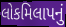
લોકમિલાપનું